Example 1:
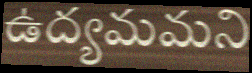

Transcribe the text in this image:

ఉద్యమమని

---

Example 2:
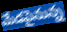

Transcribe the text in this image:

మేడపైనున్న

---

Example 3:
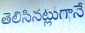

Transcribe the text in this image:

తెలిసినట్లుగానే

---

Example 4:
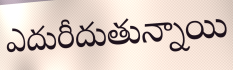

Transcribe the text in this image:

ఎదురీదుతున్నాయి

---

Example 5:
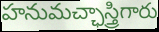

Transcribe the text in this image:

హనుమచ్ఛాస్త్రిగారు